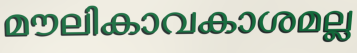
മൗലികാവകാശമല്ല